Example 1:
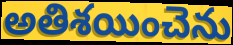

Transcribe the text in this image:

అతిశయించెను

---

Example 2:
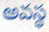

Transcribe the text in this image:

అవస్థ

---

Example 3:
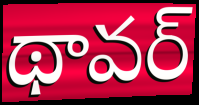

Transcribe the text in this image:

థావర్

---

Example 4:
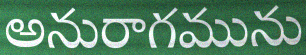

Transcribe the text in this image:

అనురాగమును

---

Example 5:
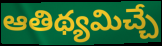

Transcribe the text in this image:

ఆతిథ్యమిచ్చే